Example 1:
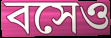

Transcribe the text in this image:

বসেও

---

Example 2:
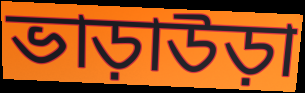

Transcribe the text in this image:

ভাড়াউড়া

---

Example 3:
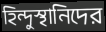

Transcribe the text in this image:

হিন্দুস্থানিদের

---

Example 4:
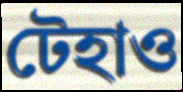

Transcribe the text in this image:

টেহাও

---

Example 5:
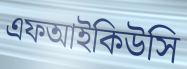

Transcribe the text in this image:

এফআইকিউসি